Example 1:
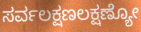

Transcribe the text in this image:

ಸರ್ವಲಕ್ಷಣಲಕ್ಷಣ್ಯೋ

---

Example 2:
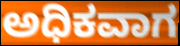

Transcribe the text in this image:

ಅಧಿಕವಾಗ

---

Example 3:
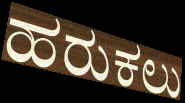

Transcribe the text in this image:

ಹರುಕಲು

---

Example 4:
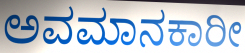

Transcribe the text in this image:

ಅವಮಾನಕಾರೀ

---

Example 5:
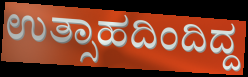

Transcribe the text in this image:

ಉತ್ಸಾಹದಿಂದಿದ್ದ